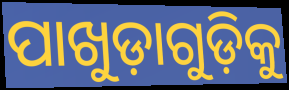
ପାଖୁଡ଼ାଗୁଡ଼ିକୁ